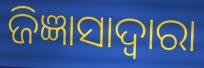
ଜିଜ୍ଞାସାଦ୍ୱାରା